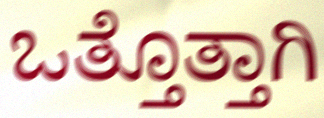
ಒತ್ತೊತ್ತಾಗಿ